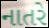
નાતરે